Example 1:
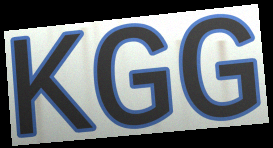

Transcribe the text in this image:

KGG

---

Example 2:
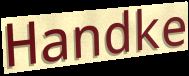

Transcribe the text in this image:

Handke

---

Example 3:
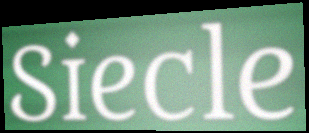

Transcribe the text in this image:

Siecle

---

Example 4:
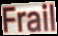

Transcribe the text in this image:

Frail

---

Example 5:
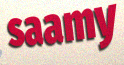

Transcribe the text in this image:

saamy